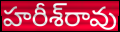
హరీశ్‌రావు